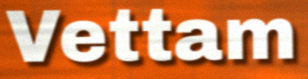
Vettam